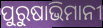
ପୁରୁଷାଭିମାନୀ